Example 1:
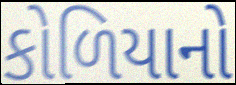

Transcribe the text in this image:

કોળિયાનો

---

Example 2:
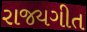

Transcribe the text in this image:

રાજ્યગીત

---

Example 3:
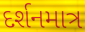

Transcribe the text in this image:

દર્શનમાત્ર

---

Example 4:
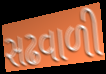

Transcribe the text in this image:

સઢવાળી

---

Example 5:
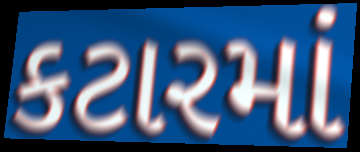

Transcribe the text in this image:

કટારમાં